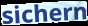
sichern